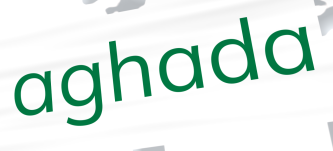
aghada